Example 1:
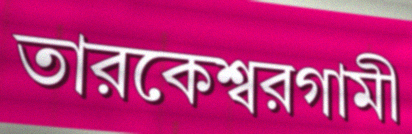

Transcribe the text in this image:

তারকেশ্বরগামী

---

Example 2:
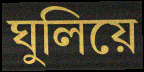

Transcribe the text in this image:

ঘুলিয়ে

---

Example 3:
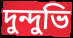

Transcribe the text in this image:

দুন্দুভি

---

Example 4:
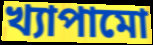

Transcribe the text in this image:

খ্যাপামো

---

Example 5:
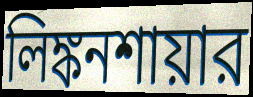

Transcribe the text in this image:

লিঙ্কনশায়ার